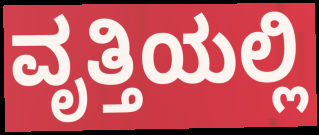
ವೃತ್ತಿಯಲ್ಲಿ